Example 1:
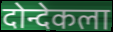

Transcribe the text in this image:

दोन्देकला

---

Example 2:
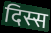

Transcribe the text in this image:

दिस्स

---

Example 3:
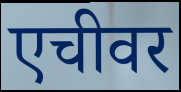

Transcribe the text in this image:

एचीवर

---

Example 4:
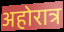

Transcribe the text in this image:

अहोरात्र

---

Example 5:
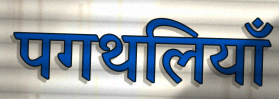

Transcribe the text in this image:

पगथलियाँ